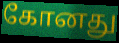
கோனது